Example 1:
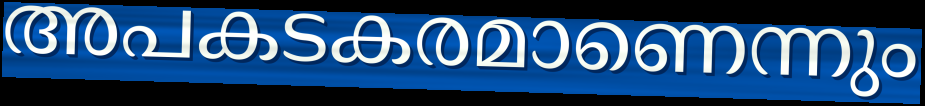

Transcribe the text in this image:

അപകടകരമാണെന്നും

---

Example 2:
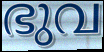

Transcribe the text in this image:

ഭുവ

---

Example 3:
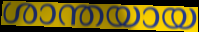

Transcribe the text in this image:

ശാന്തയായ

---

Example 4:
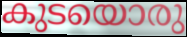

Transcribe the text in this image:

കുടയൊരു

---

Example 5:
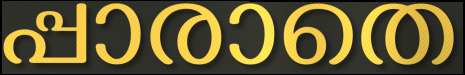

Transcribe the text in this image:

പ്പാരാതെ